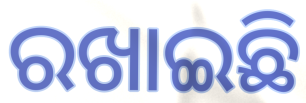
ରଖାଇଛି